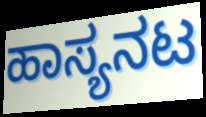
ಹಾಸ್ಯನಟ